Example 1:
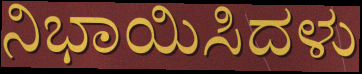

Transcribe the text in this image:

ನಿಭಾಯಿಸಿದಳು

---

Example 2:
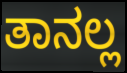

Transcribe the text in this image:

ತಾನಲ್ಲ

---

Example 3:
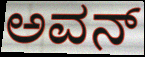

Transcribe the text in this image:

ಅವನ್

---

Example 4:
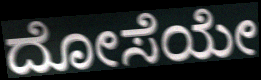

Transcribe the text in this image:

ದೋಸೆಯೇ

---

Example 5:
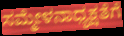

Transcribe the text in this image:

ಸಮ್ಮೇಳನಾಧ್ಯಕ್ಷತೆಗೆ